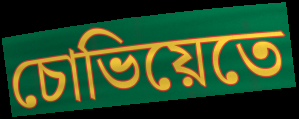
চোভিয়েতে